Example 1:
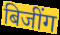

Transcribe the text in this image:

बिजींग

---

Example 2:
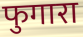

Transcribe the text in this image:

फुगारा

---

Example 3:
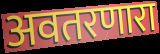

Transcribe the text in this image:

अवतरणारा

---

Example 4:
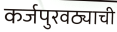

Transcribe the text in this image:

कर्जपुरवठ्याची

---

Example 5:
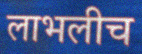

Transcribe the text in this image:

लाभलीच